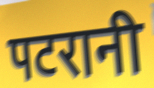
पटरानी